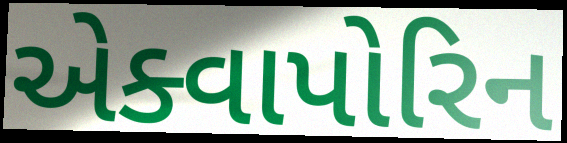
એક્વાપોરિન